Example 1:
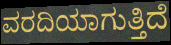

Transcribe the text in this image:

ವರದಿಯಾಗುತ್ತಿದೆ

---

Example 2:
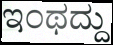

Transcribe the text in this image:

ಇಂಥದ್ದು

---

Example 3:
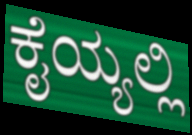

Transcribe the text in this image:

ಕೈಯ್ಯಲ್ಲಿ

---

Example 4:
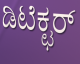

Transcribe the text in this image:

ಡಿಟೆಕ್ಟರ್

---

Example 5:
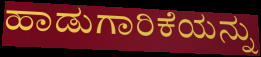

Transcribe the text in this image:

ಹಾಡುಗಾರಿಕೆಯನ್ನು